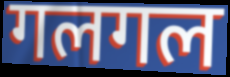
गलगल